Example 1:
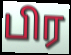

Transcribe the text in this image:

பிர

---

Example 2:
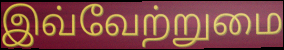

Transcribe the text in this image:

இவ்வேற்றுமை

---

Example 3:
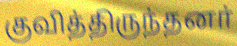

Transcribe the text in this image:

குவித்திருந்தனர்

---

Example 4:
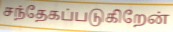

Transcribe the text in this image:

சந்தேகப்படுகிறேன்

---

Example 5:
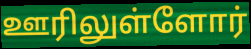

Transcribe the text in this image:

ஊரிலுள்ளோர்